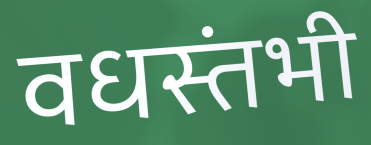
वधस्तंभी